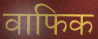
वाफिक